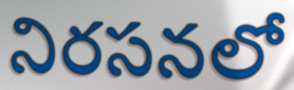
నిరసనలో